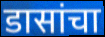
डासांचा